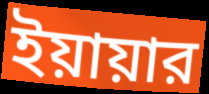
ইয়ায়ার